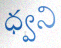
ధ్వని